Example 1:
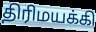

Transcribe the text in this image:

திரிமயக்கி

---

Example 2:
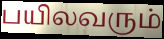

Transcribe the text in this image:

பயிலவரும்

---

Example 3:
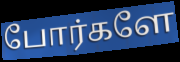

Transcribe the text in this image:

போர்களே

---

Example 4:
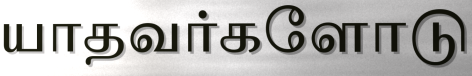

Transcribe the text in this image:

யாதவர்களோடு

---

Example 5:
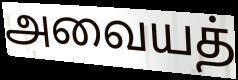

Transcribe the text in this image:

அவையத்